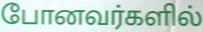
போனவர்களில்